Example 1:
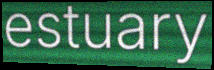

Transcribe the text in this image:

estuary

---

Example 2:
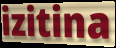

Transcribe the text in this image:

izitina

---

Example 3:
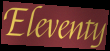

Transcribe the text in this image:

Eleventy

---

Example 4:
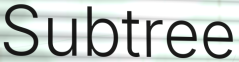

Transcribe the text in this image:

Subtree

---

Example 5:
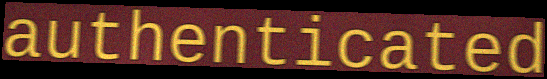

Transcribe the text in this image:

authenticated